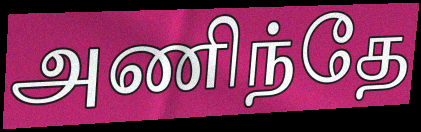
அணிந்தே